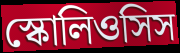
স্কোলিওসিস